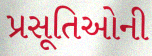
પ્રસૂતિઓની